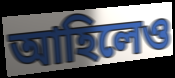
আহিলেও